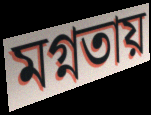
মগ্নতায়